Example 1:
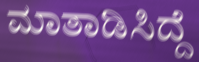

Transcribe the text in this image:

ಮಾತಾಡಿಸಿದ್ದೆ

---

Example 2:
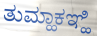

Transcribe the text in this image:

ತುಮ್ಹಾಕಞ್ಹಿ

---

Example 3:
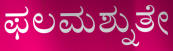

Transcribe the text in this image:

ಫಲಮಶ್ನುತೇ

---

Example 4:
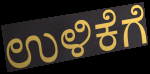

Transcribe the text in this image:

ಉಳಿಕೆಗೆ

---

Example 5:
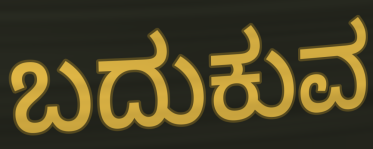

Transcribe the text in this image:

ಬದುಕುವ